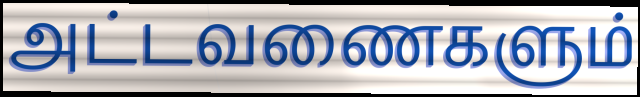
அட்டவணைகளும்